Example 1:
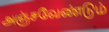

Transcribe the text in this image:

அஞ்சவேண்டும்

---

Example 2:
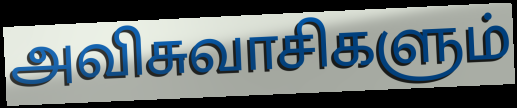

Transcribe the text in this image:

அவிசுவாசிகளும்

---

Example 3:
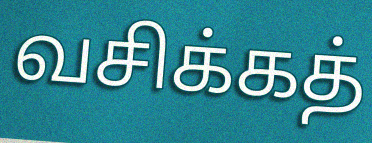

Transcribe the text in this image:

வசிக்கத்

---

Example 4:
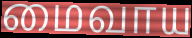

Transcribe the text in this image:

மைவாய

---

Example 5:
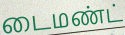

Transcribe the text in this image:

டைமண்ட்